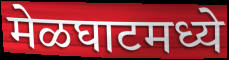
मेळघाटमध्ये